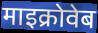
माइक्रोवेब